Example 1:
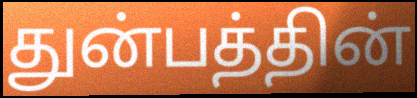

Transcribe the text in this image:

துன்பத்தின்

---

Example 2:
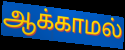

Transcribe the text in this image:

ஆக்காமல்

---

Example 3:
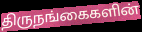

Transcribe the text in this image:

திருநங்கைகளின்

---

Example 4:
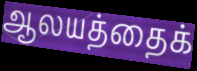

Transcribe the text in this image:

ஆலயத்தைக்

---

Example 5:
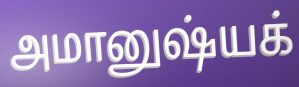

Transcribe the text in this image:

அமானுஷ்யக்